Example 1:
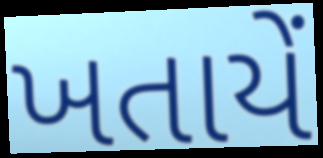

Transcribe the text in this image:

ખતાયેં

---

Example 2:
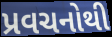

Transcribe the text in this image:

પ્રવચનોથી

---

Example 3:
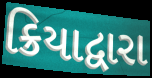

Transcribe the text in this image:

ક્રિયાદ્વારા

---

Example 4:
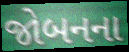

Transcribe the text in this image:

જોબનના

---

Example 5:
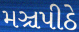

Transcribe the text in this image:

મઞ્ચપીઠે